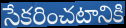
సేకరించటానికి